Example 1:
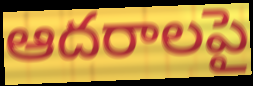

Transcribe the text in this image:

ఆదరాలపై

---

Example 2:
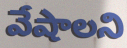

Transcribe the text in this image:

వేషాలని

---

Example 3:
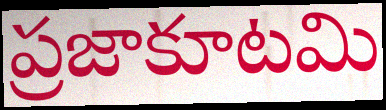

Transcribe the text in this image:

ప్రజాకూటమి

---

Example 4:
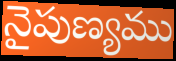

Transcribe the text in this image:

నైపుణ్యము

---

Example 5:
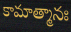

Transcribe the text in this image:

కామాత్మానః